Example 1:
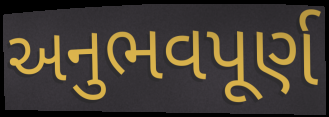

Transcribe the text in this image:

અનુભવપૂર્ણ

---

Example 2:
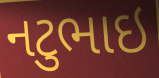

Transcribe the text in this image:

નટુભાઇ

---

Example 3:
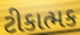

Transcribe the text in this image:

ટીકાત્મક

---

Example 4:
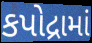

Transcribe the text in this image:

કપોદ્રામાં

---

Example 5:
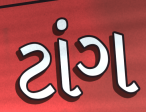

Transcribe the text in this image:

ટાંગ